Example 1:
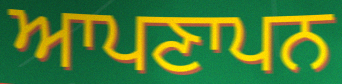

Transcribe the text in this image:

ਆਪਣਾਪਨ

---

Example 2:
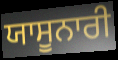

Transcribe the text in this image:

ਯਾਸੂਨਾਰੀ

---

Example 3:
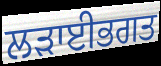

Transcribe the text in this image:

ਲੜਾਈਭਗਤ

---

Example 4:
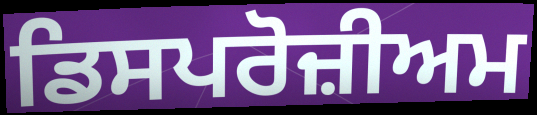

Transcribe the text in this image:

ਡਿਸਪਰੋਜ਼ੀਅਮ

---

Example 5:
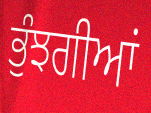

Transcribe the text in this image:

ਭੁੰਝਗੀਆਂ